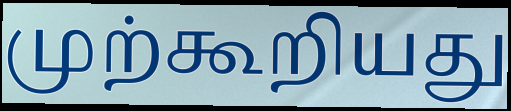
முற்கூறியது